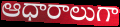
ఆధారాలుగా